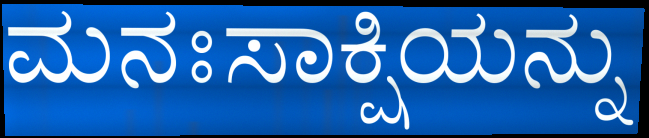
ಮನಃಸಾಕ್ಷಿಯನ್ನು